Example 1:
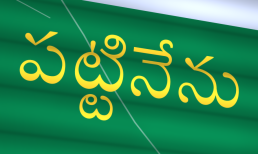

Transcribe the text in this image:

పట్టినేను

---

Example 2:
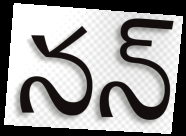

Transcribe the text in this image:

నన్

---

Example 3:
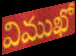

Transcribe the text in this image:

విముఖో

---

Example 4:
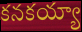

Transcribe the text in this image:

కనకయ్యా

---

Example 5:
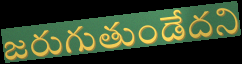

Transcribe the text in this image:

జరుగుతుండేదని